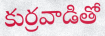
కుర్రవాడితో